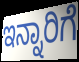
ಇನ್ನಾರಿಗೆ